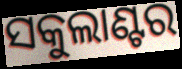
ସକୁଲାଣ୍ଟର